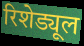
रिशेड्यूल